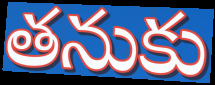
తనుకు